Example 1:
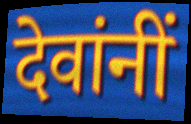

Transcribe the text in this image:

देवांनीं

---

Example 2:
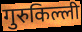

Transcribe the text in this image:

गुरुकिल्ली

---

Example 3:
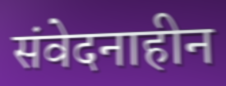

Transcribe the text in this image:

संवेदनाहीन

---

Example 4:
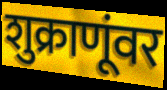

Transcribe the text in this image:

शुक्राणूंवर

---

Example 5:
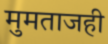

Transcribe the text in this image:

मुमताजही